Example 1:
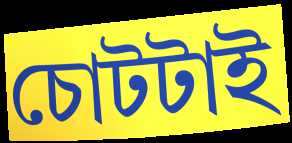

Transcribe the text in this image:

চোটটাই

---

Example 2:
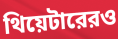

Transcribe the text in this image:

থিয়েটারেরও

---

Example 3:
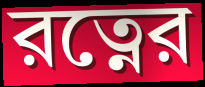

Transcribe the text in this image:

রত্নের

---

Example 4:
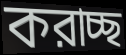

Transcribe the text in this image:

করাচ্ছ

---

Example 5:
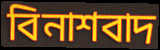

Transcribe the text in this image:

বিনাশবাদ